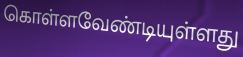
கொள்ளவேண்டியுள்ளது